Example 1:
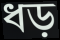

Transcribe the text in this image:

ধড়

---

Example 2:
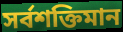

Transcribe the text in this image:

সর্বশক্তিমান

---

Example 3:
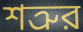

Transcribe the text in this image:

শত্রুর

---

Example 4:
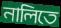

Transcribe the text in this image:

নালিতে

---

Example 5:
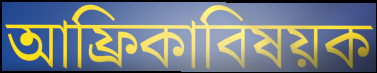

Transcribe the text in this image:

আফ্রিকাবিষয়ক